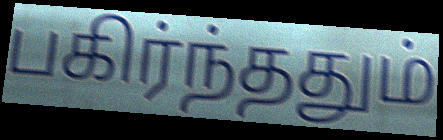
பகிர்ந்ததும்